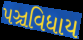
પઞ્ચવિધાય